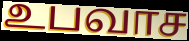
உபவாச